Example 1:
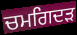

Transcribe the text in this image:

ਚਮਗਿਦੜ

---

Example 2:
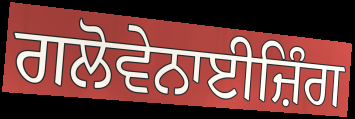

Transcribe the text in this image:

ਗਲੋਵੇਨਾਈਜ਼ਿੰਗ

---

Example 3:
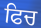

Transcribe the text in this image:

ਫਿਚ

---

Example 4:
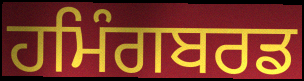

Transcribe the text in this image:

ਹਮਿੰਗਬਰਡ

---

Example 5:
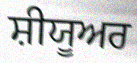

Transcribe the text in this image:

ਸ਼ੀਯੂਅਰ